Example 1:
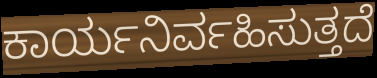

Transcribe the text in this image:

ಕಾರ್ಯನಿರ್ವಹಿಸುತ್ತದೆ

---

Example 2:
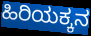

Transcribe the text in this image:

ಹಿರಿಯಕ್ಕನ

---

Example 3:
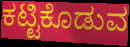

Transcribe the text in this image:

ಕಟ್ಟಿಕೊಡುವ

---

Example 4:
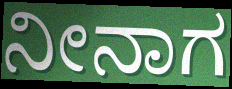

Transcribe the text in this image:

ನೀನಾಗ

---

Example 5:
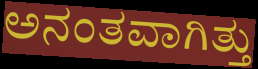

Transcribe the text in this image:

ಅನಂತವಾಗಿತ್ತು